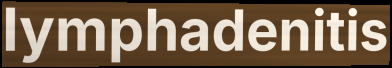
lymphadenitis